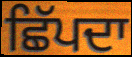
ਛਿੱਪਦਾ